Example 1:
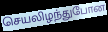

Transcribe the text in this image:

செயலிழந்துபோன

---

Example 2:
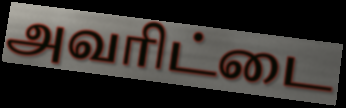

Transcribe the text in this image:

அவரிட்டை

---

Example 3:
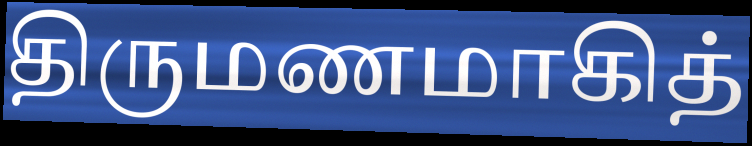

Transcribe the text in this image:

திருமணமாகித்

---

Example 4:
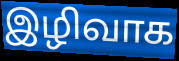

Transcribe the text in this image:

இழிவாக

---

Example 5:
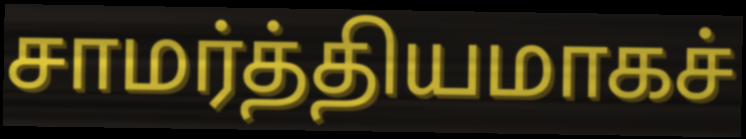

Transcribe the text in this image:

சாமர்த்தியமாகச்